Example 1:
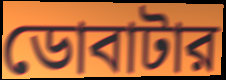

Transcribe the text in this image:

ডোবাটার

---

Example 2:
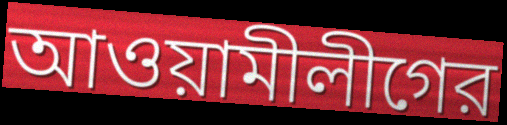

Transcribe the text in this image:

আওয়ামীলীগের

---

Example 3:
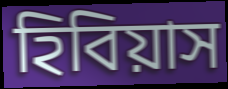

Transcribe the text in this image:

হিবিয়াস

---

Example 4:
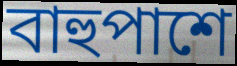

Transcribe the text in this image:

বাহুপাশে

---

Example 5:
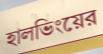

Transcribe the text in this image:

হালভিংয়ের